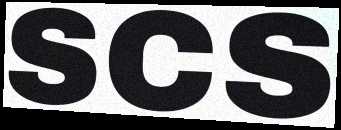
scs